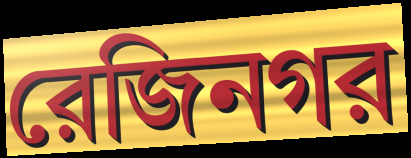
রেজিনগর